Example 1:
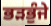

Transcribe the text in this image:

ਭੜਭੁੰਜੇ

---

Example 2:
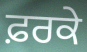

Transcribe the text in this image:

ਫ਼ਰਕੇ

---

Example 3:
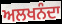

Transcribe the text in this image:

ਅਲਖਨੰਦਾ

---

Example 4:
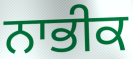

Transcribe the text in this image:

ਨਾਭੀਕ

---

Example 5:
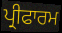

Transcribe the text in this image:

ਪ੍ਰੀਫਾਰਮ